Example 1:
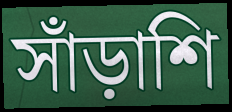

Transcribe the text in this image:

সাঁড়াশি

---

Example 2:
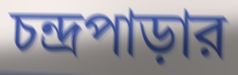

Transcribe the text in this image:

চন্দ্রপাড়ার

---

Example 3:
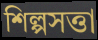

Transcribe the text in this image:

শিল্পসত্তা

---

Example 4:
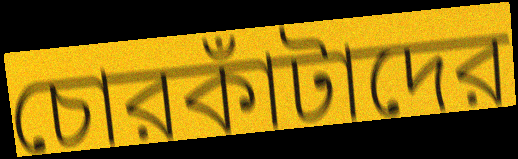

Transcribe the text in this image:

চোরকাঁটাদের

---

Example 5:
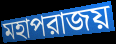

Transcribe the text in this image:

মহাপরাজয়